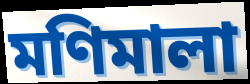
মণিমালা